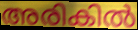
അരികിൽ